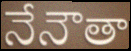
నేనౌతా